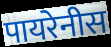
पायरेनीस